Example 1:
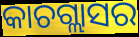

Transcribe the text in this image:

କାଚଗ୍ଲାସର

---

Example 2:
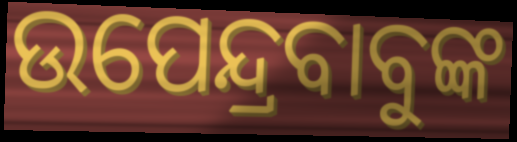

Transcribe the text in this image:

ଉପେନ୍ଦ୍ରବାବୁଙ୍କ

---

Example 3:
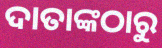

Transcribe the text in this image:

ଦାତାଙ୍କଠାରୁ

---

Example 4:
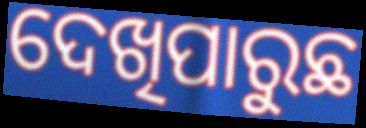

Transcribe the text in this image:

ଦେଖିପାରୁଛ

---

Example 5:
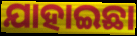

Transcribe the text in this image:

ଯାହାଇଛା